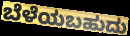
ಬೆಳೆಯಬಹುದು